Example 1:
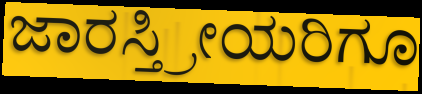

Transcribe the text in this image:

ಜಾರಸ್ತ್ರೀಯರಿಗೂ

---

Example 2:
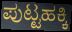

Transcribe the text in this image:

ಪುಟ್ಟಹಕ್ಕಿ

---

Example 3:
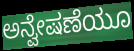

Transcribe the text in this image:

ಅನ್ವೇಷಣೆಯೂ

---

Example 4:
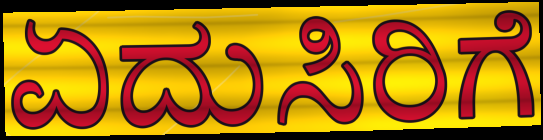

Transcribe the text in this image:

ಏದುಸಿರಿಗೆ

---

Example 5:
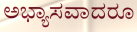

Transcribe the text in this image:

ಅಭ್ಯಾಸವಾದರೂ